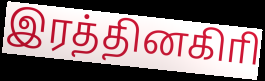
இரத்தினகிரி